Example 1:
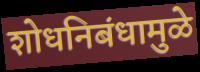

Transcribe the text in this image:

शोधनिबंधामुळे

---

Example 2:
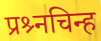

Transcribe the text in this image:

प्रश्र्नचिन्ह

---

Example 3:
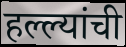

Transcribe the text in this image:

हल्ल्यांची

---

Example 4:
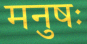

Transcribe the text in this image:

मनुषः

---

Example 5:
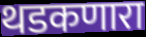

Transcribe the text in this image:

थडकणारा